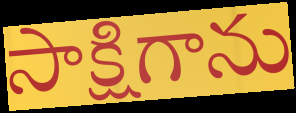
సాక్షిగాను